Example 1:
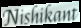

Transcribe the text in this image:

Nishikant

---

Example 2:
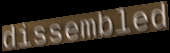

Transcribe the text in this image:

dissembled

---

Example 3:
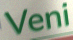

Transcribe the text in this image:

Veni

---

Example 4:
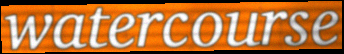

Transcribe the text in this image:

watercourse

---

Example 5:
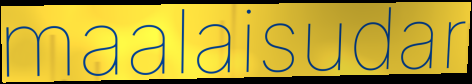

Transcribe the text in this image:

maalaisudar